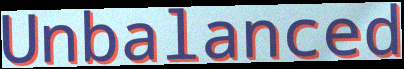
Unbalanced